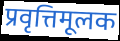
प्रवृत्तिमूलक